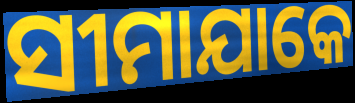
ସୀମାଯାକେ